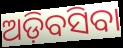
ଅଡ଼ିବସିବା